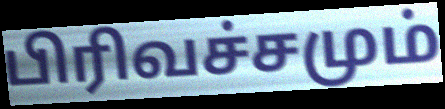
பிரிவச்சமும்